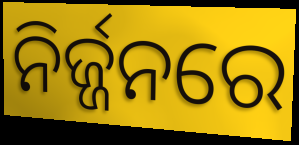
ନିର୍ଜ୍ଜନରେ